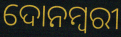
ଦୋନମ୍ବରୀ